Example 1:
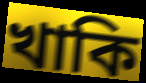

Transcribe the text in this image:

খাকি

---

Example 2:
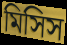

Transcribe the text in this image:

মিসিস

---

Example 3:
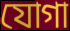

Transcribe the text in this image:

যোগা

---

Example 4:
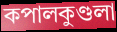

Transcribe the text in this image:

কপালকুণ্ডলা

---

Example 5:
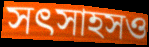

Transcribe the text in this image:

সৎসাহসও